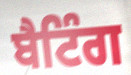
ਬੈਟਿੰਗ